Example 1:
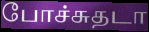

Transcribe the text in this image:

போச்சுதடா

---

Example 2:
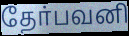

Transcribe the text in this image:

தேர்பவனி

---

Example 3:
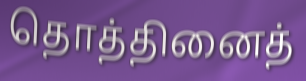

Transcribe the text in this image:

தொத்தினைத்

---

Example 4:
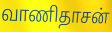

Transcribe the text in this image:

வாணிதாசன்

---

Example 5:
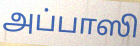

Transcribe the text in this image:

அப்பாஸி